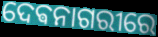
ଦେଵନାଗରୀରେ